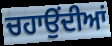
ਚਹਾਉਂਦੀਆਂ